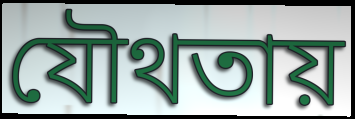
যৌথতায়